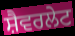
ਸ਼ੈਵਰਲੇਟ